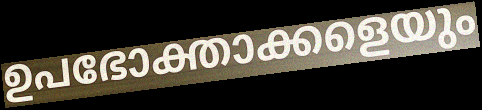
ഉപഭോക്താക്കളെയും